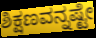
ಶಿಕ್ಷಣವನ್ನಷ್ಟೇ